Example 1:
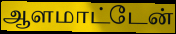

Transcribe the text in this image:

ஆளமாட்டேன்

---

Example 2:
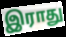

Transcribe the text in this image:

இராது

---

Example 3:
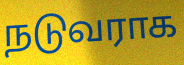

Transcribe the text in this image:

நடுவராக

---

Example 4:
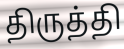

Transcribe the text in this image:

திருத்தி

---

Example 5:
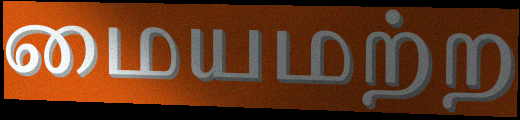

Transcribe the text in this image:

மையமற்ற